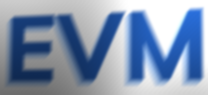
EVM